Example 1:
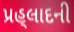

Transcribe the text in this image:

પ્રહ્‌લાદની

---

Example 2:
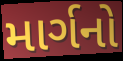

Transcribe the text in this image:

માર્ગનો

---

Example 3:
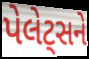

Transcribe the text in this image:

પેલેટ્સને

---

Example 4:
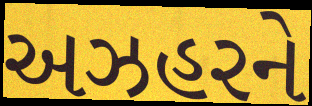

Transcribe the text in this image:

અઝહરને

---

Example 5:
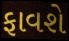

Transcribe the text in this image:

ફાવશે